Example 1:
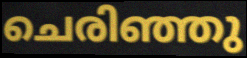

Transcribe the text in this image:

ചെരിഞ്ഞു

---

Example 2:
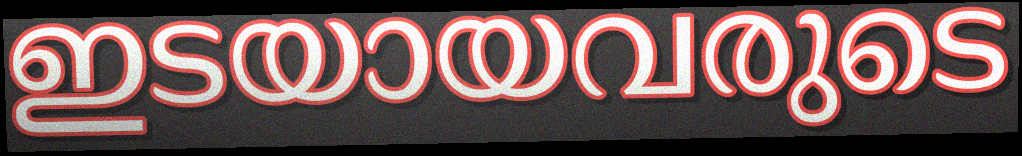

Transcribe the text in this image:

ഇടയായവരുടെ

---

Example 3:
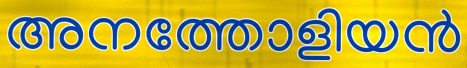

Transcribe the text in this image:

അനത്തോളിയൻ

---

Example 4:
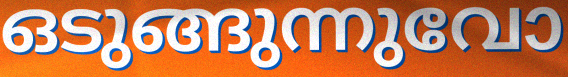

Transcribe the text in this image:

ഒടുങ്ങുന്നുവോ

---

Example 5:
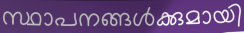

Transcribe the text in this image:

സ്ഥാപനങ്ങൾക്കുമായി